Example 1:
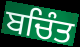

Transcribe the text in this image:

ਬਚਿੰਤ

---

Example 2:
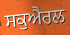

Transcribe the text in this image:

ਸਕੁਐਰਲ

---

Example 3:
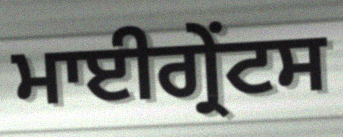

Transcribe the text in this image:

ਮਾਈਗ੍ਰੇਂਟਸ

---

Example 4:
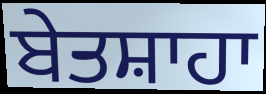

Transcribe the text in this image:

ਬੇਤਸ਼ਾਹਾ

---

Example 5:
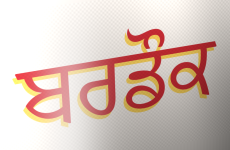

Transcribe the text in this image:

ਬਰਡੌਕ